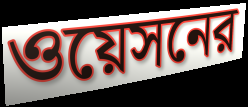
ওয়েসনের